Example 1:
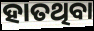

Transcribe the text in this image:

ହାତଥିବା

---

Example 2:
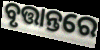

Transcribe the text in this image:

ବୃତ୍ତାନ୍ତରେ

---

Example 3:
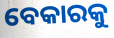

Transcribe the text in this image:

ବେକାରକୁ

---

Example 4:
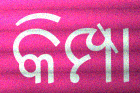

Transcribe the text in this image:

କିମ୍ପା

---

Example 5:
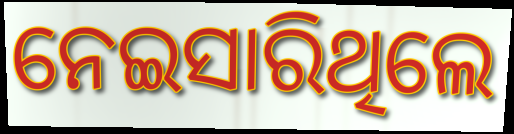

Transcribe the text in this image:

ନେଇସାରିଥିଲେ